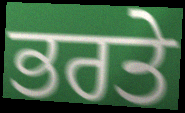
ਭਰਤੇ